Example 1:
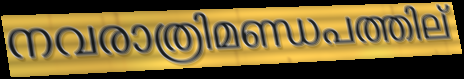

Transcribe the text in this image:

നവരാത്രിമണ്ഡപത്തില്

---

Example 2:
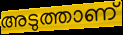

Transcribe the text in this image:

അടുത്താണ്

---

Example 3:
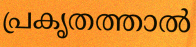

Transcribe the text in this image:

പ്രകൃതത്താൽ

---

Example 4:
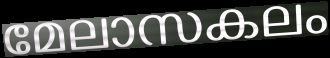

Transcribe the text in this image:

മേലാസകലം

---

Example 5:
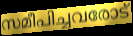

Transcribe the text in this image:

സമീപിച്ചവരോട്